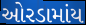
ઓરડામાંય